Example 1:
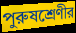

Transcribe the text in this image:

পুরুষশ্রেণীর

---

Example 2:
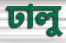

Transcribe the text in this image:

ঢালু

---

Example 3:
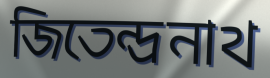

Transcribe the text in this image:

জিতেন্দ্রনাথ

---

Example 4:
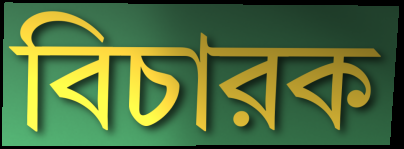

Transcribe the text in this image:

বিচারক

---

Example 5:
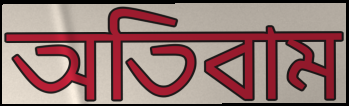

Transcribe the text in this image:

অতিবাম